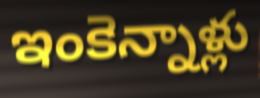
ఇంకెన్నాళ్లు